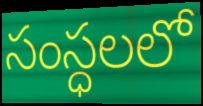
సంస్ధలలో